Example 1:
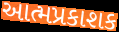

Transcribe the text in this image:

આત્મપ્રકાશક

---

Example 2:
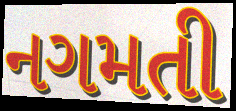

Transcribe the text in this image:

નગમતી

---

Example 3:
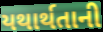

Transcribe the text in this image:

યથાર્થતાની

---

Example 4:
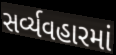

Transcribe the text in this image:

સર્વ્યવહારમાં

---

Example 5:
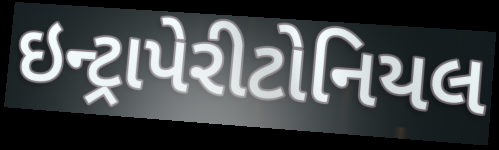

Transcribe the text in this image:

ઇન્ટ્રાપેરીટોનિયલ